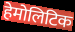
हेमोलिटिक